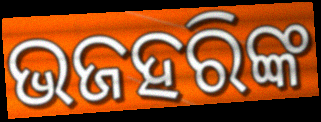
ଭଜହରିଙ୍କ